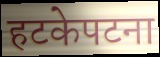
हटकेपटना